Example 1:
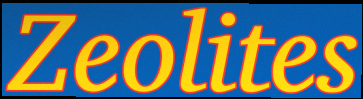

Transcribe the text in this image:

Zeolites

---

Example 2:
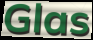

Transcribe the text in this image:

Glas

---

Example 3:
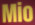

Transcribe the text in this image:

Mio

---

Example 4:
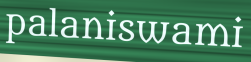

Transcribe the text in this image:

palaniswami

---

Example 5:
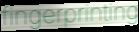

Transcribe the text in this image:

fingerprinting